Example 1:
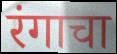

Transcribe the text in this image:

रंगाचा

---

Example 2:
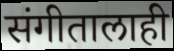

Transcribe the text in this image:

संगीतालाही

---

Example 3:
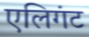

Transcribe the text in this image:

एलिगंट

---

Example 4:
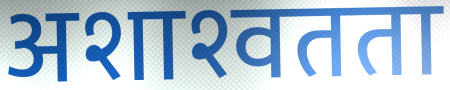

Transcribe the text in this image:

अशाश्वतता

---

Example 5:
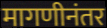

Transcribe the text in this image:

मागणीनंतर